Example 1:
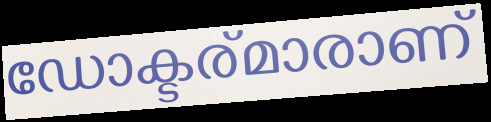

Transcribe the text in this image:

ഡോക്ടര്മാരാണ്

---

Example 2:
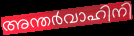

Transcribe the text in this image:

അന്തർവാഹിനി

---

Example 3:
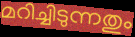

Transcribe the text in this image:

മറിച്ചിടുന്നതും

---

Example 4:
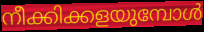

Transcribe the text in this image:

നീക്കിക്കളയുമ്പോൾ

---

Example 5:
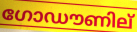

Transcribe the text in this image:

ഗോഡൗണില്